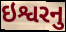
ઇશ્વરનુ